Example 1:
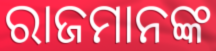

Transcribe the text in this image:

ରାଜମାନଙ୍କ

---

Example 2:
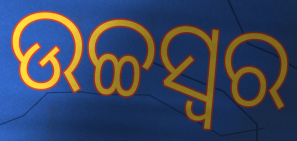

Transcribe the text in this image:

ଉଚ୍ଚସ୍ଵର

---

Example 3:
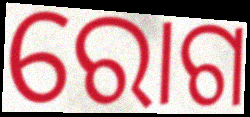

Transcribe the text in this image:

ରୋଗ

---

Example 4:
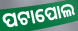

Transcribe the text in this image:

ପଟାପୋଲ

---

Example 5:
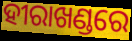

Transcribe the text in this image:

ହୀରାଖଣ୍ଡରେ